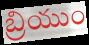
బ్రియుం